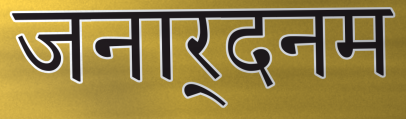
जनार्दनम